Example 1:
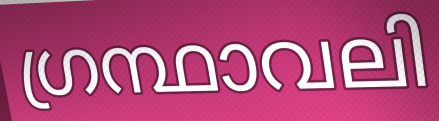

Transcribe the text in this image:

ഗ്രന്ഥാവലി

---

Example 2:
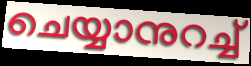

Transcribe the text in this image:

ചെയ്യാനുറച്ച്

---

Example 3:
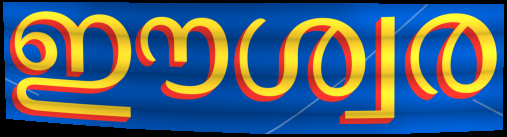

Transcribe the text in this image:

ഈശ്വര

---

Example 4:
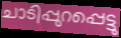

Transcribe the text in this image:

ചാടിപ്പുറപ്പെട്ടു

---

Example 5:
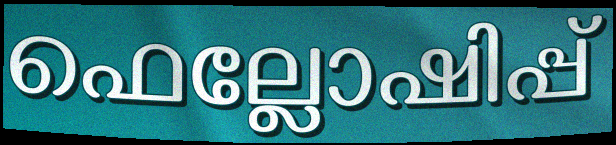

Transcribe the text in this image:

ഫെല്ലോഷിപ്പ്